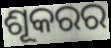
ଶୂକରର